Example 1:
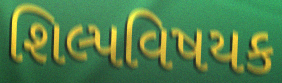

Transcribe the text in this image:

શિલ્પવિષયક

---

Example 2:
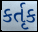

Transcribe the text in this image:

કર્તૃક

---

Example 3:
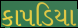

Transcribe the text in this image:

કાપડિયા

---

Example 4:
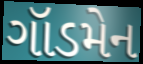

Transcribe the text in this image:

ગૉડમેન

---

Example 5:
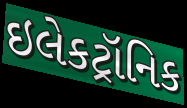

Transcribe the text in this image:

ઇલેકટ્રૉનિક